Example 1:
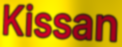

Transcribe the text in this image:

Kissan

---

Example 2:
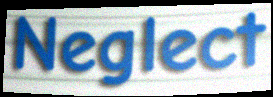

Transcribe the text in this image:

Neglect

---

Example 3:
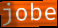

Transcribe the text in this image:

jobe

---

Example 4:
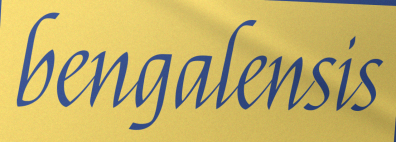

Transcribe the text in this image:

bengalensis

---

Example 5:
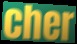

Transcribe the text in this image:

cher